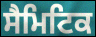
ਸੈਮਿਟਿਕ